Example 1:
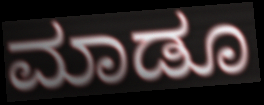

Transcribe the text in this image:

ಮಾಡೂ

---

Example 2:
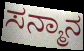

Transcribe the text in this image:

ಸನ್ಮಾನ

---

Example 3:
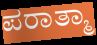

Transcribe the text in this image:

ಪರಾತ್ಮಾ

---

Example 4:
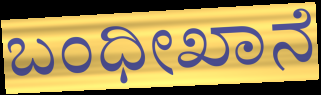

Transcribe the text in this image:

ಬಂಧೀಖಾನೆ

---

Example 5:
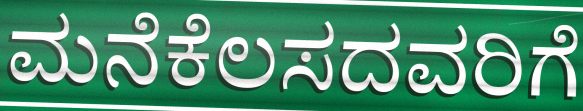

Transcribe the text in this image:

ಮನೆಕೆಲಸದವರಿಗೆ